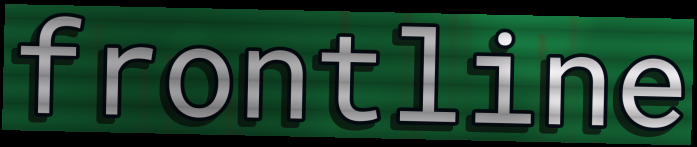
frontline